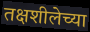
तक्षशीलेच्या